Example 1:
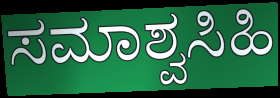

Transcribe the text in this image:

ಸಮಾಶ್ವಸಿಹಿ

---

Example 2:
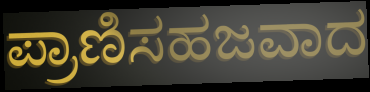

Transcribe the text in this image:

ಪ್ರಾಣಿಸಹಜವಾದ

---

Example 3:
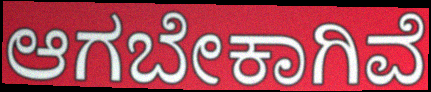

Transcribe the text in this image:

ಆಗಬೇಕಾಗಿವೆ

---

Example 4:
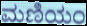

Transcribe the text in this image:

ಮಣಿಯಂ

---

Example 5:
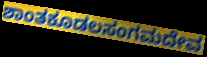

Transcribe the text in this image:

ಶಾಂತಕೂಡಲಸಂಗಮದೇವ